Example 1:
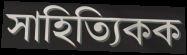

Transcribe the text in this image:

সাহিত্যিকক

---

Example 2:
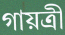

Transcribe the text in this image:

গায়ত্ৰী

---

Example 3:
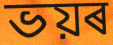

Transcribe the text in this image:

ভয়ৰ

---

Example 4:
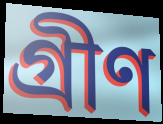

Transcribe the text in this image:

গ্ৰীণ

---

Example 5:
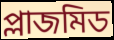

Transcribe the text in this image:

প্লাজমিড